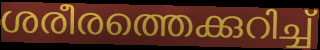
ശരീരത്തെക്കുറിച്ച്